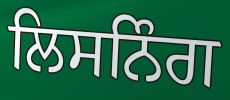
ਲਿਸਨਿੰਗ